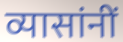
व्यासांनीं